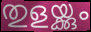
തുളയ്ക്കും